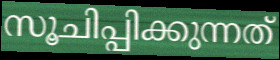
സൂചിപ്പിക്കുന്നത്